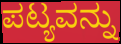
ಪಟ್ಯವನ್ನು